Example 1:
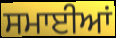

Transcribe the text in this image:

ਸਮਾਈਆਂ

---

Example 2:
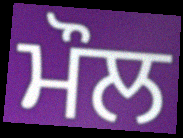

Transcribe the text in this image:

ਮੌਲ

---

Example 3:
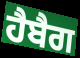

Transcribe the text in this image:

ਹੈਬੈਗ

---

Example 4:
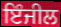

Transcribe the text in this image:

ਇੰਜੀਲ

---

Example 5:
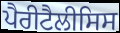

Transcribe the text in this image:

ਪੈਰੀਟੈਲੀਸਿਸ